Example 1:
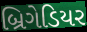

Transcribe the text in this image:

બ્રિગેડિયર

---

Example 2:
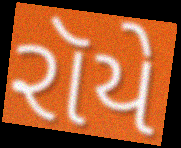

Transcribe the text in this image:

રૉયે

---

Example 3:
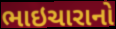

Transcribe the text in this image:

ભાઇચારાનો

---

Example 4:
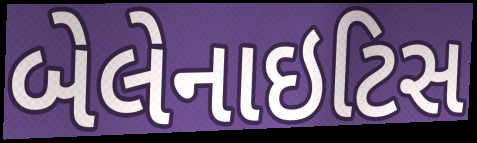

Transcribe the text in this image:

બેલેનાઇટિસ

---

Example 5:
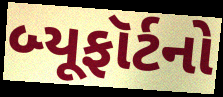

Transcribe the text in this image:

બ્યૂફૉર્ટનો